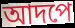
আদপে